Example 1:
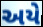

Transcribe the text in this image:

અયે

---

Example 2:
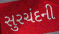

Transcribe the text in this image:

સુરચંદની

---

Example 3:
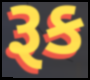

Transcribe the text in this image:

રૂક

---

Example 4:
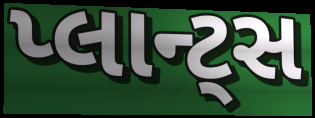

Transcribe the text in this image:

પ્લાન્ટ્સ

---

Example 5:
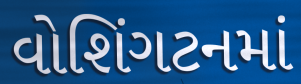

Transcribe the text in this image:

વોશિંગટનમાં